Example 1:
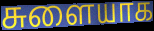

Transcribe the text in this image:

சுளையாக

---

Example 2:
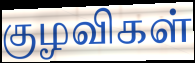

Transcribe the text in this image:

குழவிகள்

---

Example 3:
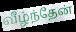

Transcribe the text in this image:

வீழ்ந்தேன்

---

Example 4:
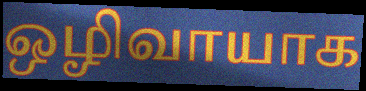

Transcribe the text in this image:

ஒழிவாயாக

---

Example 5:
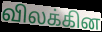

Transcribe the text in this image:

விலக்கின